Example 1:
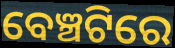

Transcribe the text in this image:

ବେଞ୍ଚଟିରେ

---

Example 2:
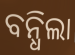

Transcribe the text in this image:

ବନ୍ଧିଲା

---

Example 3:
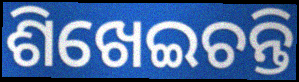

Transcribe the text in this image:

ଶିଖେଇଚନ୍ତି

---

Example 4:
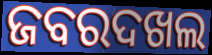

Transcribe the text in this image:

ଜବରଦଖଲ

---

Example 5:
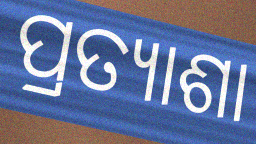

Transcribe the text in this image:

ପ୍ରତ୍ୟାଶା